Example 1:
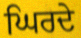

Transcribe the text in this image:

ਘਿਰਦੇ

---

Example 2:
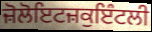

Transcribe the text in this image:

ਜ਼ੋਲੋਇਟਜ਼ਕੁਇੰਟਲੀ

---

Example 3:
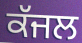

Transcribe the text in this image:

ਕੱਜਲ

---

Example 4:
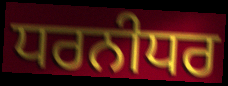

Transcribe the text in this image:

ਧਰਨੀਧਰ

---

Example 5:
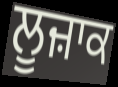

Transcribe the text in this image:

ਲੂਜ਼ਾਕ